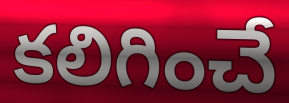
కలిగించే